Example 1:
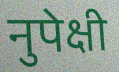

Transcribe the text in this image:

नुपेक्षी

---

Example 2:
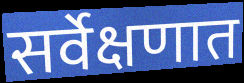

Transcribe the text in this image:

सर्वेक्षणात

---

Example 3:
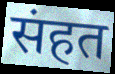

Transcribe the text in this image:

संहत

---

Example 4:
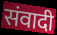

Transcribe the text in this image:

संवादी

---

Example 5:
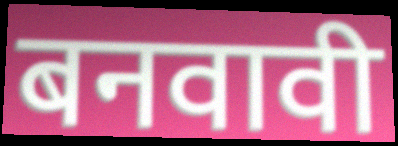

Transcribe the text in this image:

बनवावी